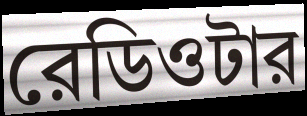
রেডিওটার